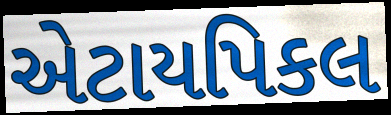
એટાયપિકલ